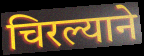
चिरल्याने